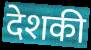
देशकी